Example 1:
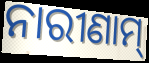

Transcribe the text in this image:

ନାରୀଣାମ୍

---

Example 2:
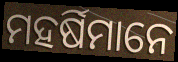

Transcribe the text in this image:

ମହର୍ଷିମାନେ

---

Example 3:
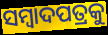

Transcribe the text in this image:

ସମ୍ବାଦପତ୍ରକୁ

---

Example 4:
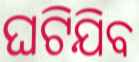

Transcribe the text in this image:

ଘଟିଯିବ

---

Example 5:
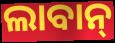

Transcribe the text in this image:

ଲାବାନ୍